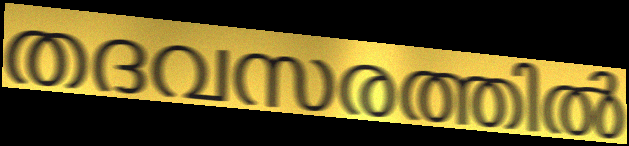
തദവസരത്തിൽ